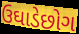
ઉઘાડેછોગ